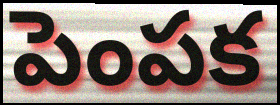
పెంపక